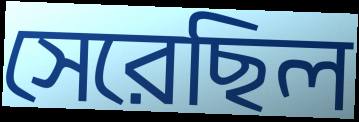
সেরেছিল